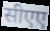
सीएए